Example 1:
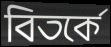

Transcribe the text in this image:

বিতর্কে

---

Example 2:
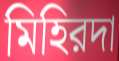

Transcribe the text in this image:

মিহিরদা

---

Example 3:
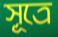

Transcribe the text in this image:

সূত্রে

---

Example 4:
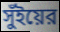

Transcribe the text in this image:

সুঁইয়ের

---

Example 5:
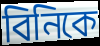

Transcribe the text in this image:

বিনিকে